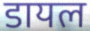
डायल